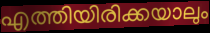
എത്തിയിരിക്കയാലും